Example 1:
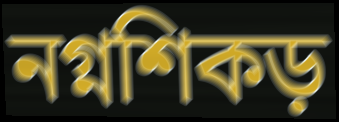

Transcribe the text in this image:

নগ্নশিকড়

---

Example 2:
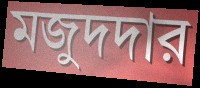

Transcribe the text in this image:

মজুদদার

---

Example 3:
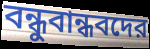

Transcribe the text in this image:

বন্ধুবান্ধবদের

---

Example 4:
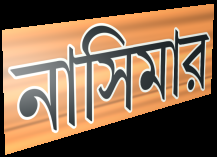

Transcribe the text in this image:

নাসিমার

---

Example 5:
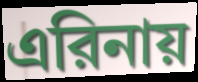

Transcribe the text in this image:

এরিনায়